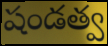
షండత్వ